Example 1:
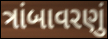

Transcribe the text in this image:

ત્રાંબાવરણું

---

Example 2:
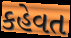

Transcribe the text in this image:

કહેવત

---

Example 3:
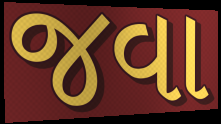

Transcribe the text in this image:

જવા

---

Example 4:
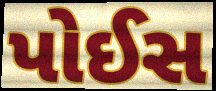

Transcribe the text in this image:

પોઈસ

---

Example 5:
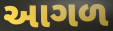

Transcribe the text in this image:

આગળ